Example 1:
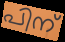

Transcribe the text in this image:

പിന്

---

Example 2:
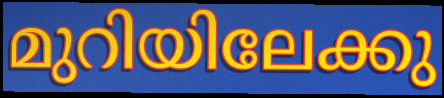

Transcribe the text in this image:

മുറിയിലേക്കു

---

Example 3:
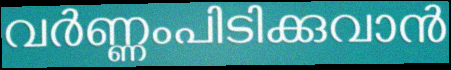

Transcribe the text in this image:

വർണ്ണംപിടിക്കുവാൻ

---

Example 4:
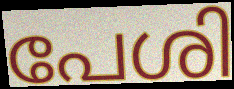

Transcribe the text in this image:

പേശി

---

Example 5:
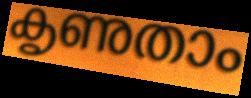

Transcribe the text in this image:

കൃണുതാം